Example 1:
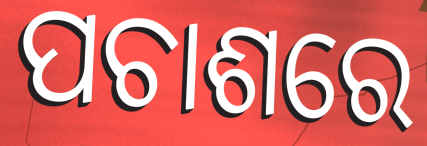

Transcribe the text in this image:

ପଚାଶରେ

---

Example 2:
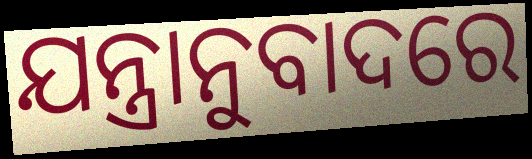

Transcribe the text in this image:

ଯନ୍ତ୍ରାନୁବାଦରେ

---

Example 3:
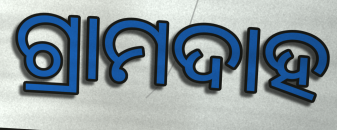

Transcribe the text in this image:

ଗ୍ରାମଦାହ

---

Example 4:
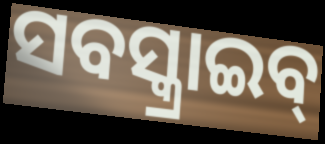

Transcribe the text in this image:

ସବସ୍କ୍ରାଇବ୍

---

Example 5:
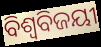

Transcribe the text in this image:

ବିଶ୍ବବିଜୟୀ